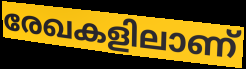
രേഖകളിലാണ്